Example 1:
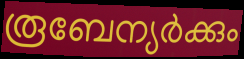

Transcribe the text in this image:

രൂബേന്യർക്കും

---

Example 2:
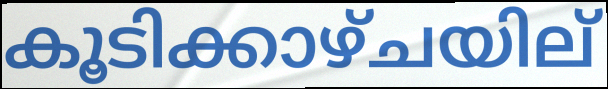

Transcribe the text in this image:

കൂടിക്കാഴ്ചയില്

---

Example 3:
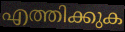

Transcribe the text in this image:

എത്തിക്കുക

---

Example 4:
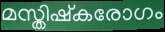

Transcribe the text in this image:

മസ്തിഷ്കരോഗം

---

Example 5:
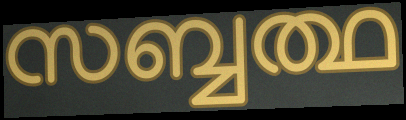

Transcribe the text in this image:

സബ്ബത്ഥ